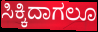
ಸಿಕ್ಕಿದಾಗಲೂ